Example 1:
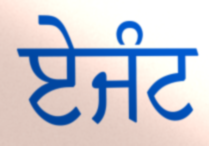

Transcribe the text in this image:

ਏਜੰਟ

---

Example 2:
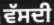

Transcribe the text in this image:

ਵੱਸਦੀ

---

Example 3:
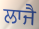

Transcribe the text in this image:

ਲਾਜੈ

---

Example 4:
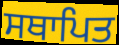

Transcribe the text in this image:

ਸਥਾਪਿਤ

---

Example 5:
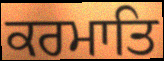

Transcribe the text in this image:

ਕਰਮਾਤਿ